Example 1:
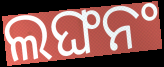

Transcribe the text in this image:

ଲଙ୍ଘନଂ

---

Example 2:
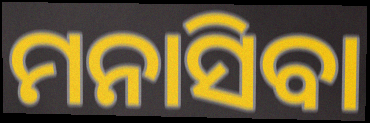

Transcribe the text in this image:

ମନାସିବା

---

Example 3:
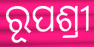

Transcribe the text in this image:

ରୂପଶ୍ରୀ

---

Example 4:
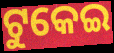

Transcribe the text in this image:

ଟୁକେଇ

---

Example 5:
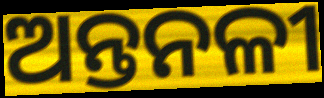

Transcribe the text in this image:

ଅନ୍ତନଳୀ